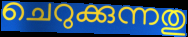
ചെറുക്കുന്നതു